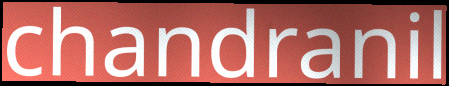
chandranil